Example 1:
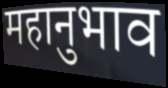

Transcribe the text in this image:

महानुभाव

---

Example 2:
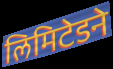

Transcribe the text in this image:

लिमिटेडने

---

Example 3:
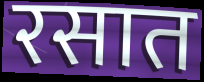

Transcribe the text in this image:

रसात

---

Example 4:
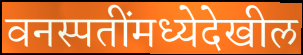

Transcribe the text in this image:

वनस्पतींमध्येदेखील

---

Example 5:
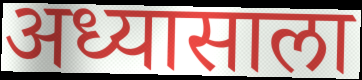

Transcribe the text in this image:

अध्यासाला